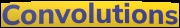
Convolutions